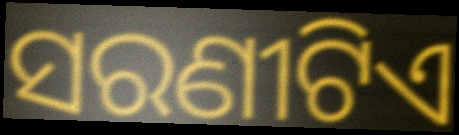
ସରଣୀଟିଏ